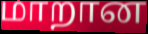
மாறான